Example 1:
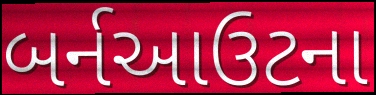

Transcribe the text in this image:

બર્નઆઉટના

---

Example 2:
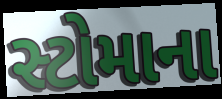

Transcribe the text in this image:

સ્ટોમાના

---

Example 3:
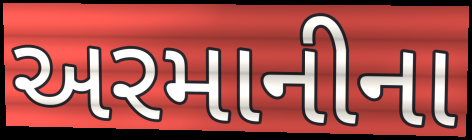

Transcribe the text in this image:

અરમાનીના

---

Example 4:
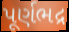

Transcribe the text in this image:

પૂર્ણભદ્ર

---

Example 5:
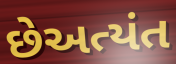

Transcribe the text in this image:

છેઅત્યંત